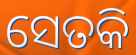
ସେତକି